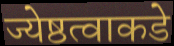
ज्येष्ठत्वाकडे